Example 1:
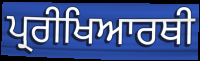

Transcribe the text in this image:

ਪ੍ਰਰੀਖਿਆਰਥੀ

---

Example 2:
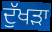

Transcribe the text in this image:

ਦੁੱਖਡ਼ਾ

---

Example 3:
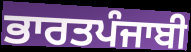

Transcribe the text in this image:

ਭਾਰਤਪੰਜਾਬੀ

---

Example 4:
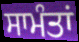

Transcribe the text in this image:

ਸਾਮੰਤਾਂ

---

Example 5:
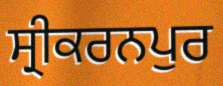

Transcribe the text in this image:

ਸ੍ਰੀਕਰਨਪੁਰ